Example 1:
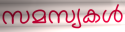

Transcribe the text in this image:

സമസ്യകൾ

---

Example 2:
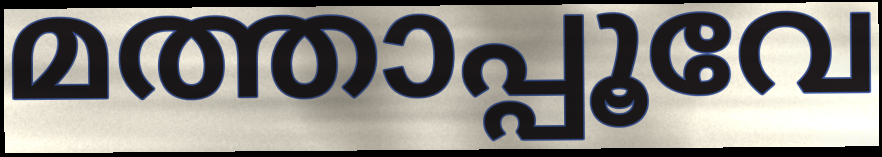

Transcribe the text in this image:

മത്താപ്പൂവേ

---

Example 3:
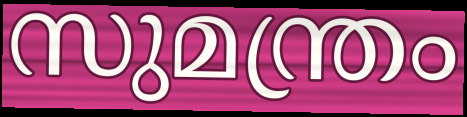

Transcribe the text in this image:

സുമന്ത്രം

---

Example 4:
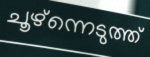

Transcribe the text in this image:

ചൂഴ്ന്നെടുത്ത്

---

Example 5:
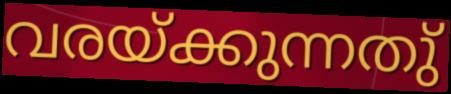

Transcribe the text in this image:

വരയ്ക്കുന്നതു്